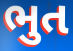
ભુત